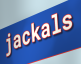
jackals